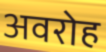
अवरोह